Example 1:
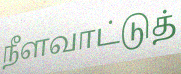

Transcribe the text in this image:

நீளவாட்டுத்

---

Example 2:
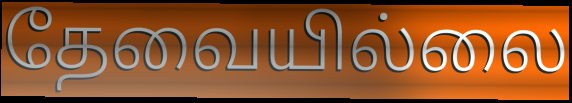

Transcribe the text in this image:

தேவையில்லை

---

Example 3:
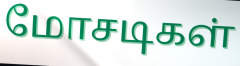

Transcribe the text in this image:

மோசடிகள்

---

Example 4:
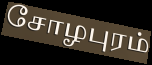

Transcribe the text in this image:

சோழபுரம்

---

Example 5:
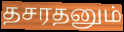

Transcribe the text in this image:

தசரதனும்